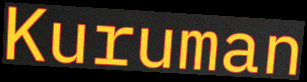
Kuruman